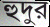
হুদুর